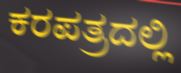
ಕರಪತ್ರದಲ್ಲಿ